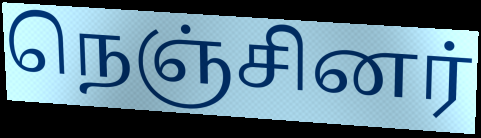
நெஞ்சினர்